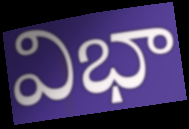
విభా